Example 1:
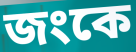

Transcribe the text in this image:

জংকে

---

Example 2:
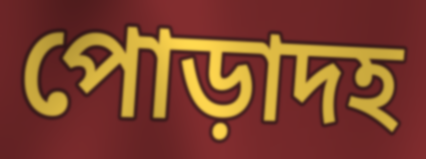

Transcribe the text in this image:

পোড়াদহ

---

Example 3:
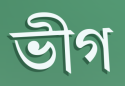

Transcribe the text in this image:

ভীগ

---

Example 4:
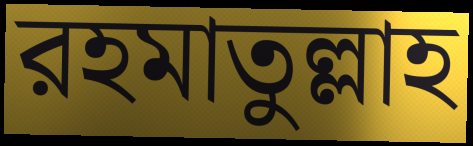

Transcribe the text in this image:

রহমাতুল্লাহ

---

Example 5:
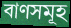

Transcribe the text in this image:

বাণসমূহ